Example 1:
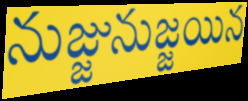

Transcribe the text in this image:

నుజ్జునుజ్జయిన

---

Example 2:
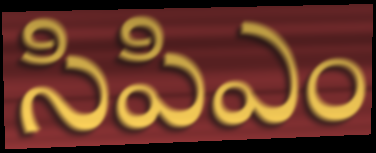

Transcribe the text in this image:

సిపిఎం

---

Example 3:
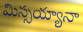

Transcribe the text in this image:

మిస్సయ్యానా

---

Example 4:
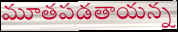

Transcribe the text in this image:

మూతపడతాయన్న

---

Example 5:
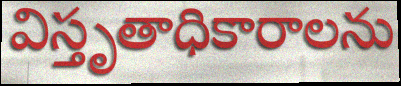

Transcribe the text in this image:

విస్తృతాధికారాలను